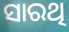
ସାରଥି